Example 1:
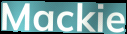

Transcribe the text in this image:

Mackie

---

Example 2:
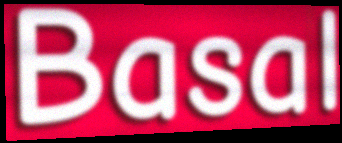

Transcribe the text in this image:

Basal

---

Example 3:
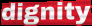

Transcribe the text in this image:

dignity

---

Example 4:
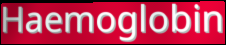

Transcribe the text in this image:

Haemoglobin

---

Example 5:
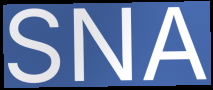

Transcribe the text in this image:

SNA